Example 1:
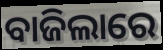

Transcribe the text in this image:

ବାଜିଲାରେ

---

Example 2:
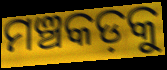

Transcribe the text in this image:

ମଞ୍ଚକଡ଼କୁ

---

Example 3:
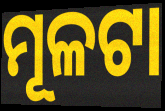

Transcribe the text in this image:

ମୂଳଟା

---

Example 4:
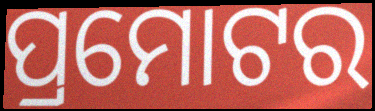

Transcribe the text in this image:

ପ୍ରମୋଟର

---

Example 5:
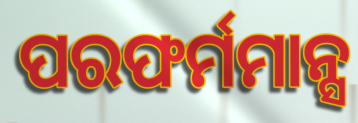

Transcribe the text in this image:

ପରଫର୍ମମାନ୍ସ